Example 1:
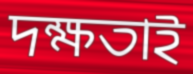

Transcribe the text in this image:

দক্ষতাই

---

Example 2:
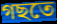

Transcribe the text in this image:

গছতে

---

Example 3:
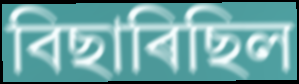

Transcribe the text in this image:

বিছাৰিছিল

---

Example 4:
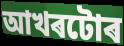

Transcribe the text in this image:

আখৰটোৰ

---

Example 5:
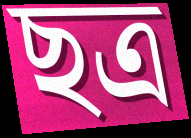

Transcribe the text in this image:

ছত্ৰ